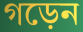
গড়েন